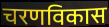
चरणविकास